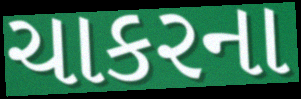
ચાકરના